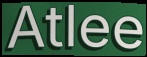
Atlee